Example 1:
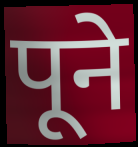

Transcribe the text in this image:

पूने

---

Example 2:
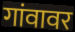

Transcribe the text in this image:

गांवावर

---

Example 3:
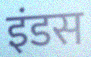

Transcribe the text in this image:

इंडस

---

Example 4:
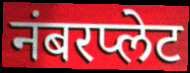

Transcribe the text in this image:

नंबरप्लेट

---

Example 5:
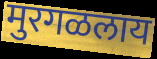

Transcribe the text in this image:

मुरगळलाय